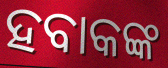
ହବାକଙ୍କ